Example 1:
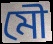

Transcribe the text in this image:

মৌ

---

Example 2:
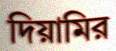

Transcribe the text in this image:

দিয়ামির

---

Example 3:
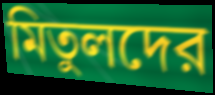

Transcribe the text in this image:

মিতুলদের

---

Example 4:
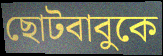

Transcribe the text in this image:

ছোটবাবুকে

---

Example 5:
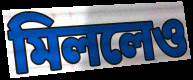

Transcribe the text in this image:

মিললেও